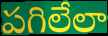
పగిలేలా